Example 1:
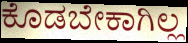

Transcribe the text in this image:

ಕೊಡಬೇಕಾಗಿಲ್ಲ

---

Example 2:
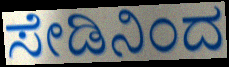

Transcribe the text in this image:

ಸೇಡಿನಿಂದ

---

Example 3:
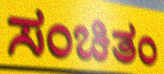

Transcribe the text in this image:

ಸಂಚಿತಂ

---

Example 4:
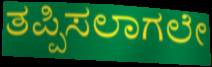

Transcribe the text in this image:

ತಪ್ಪಿಸಲಾಗಲೇ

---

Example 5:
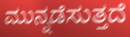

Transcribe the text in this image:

ಮುನ್ನಡೆಸುತ್ತದೆ